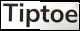
Tiptoe